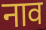
नाव